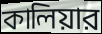
কালিয়ার